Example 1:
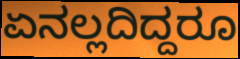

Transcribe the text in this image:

ಏನಲ್ಲದಿದ್ದರೂ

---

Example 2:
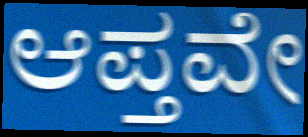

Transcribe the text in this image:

ಆಪ್ತವೇ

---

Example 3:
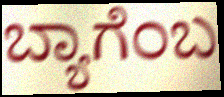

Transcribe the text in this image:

ಬ್ಯಾಗೆಂಬ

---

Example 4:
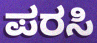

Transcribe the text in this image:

ಪರಸಿ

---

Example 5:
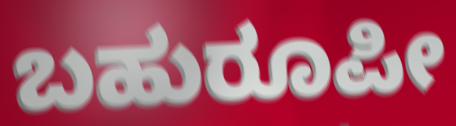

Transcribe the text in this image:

ಬಹುರೂಪೀ